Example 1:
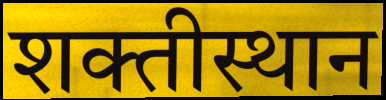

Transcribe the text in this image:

शक्तीस्थान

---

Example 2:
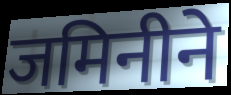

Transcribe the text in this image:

जमिनीने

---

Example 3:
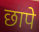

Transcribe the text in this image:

छापे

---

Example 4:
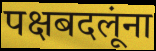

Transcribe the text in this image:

पक्षबदलूंना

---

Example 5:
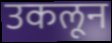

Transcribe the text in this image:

उकलून